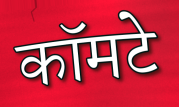
कॉमटे